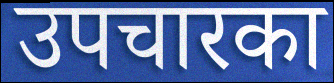
उपचारका